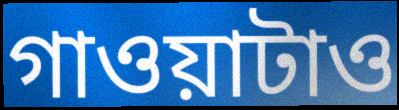
গাওয়াটাও